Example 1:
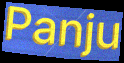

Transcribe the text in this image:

Panju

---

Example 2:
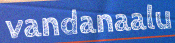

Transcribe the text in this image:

vandanaalu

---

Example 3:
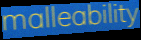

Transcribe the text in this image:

malleability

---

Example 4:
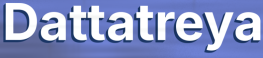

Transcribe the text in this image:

Dattatreya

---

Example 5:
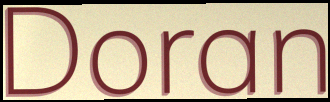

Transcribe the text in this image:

Doran